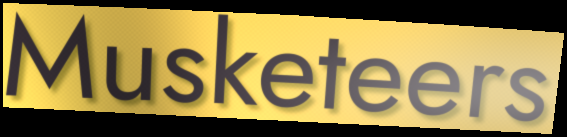
Musketeers